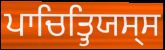
ਪਾਚਿਤ੍ਤਿਯਸ੍ਸ